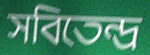
সবিতেন্দ্র